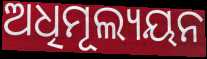
ଅଧିମୂଲ୍ୟୟନ